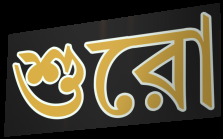
শুরো